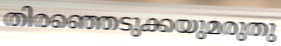
തിരഞ്ഞെടുക്കയുമരുതു